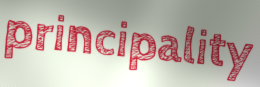
principality